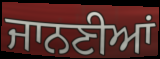
ਜਾਨਣੀਆਂ